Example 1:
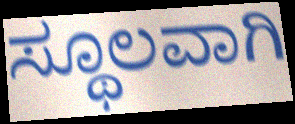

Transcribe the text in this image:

ಸ್ಥೂಲವಾಗಿ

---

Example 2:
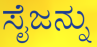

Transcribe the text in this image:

ಸೈಜನ್ನು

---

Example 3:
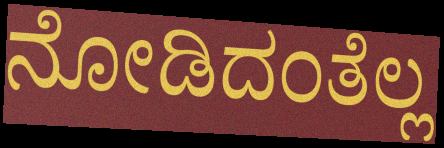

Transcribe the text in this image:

ನೋಡಿದಂತೆಲ್ಲ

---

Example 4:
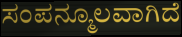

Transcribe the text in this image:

ಸಂಪನ್ಮೂಲವಾಗಿದೆ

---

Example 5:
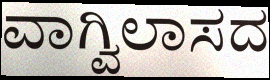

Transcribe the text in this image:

ವಾಗ್ವಿಲಾಸದ